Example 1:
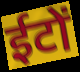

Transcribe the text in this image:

ईटों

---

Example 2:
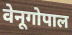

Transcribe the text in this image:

वेनूगोपाल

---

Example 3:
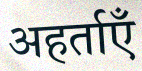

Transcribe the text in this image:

अहर्ताएँ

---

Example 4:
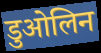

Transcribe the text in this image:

डुओलिन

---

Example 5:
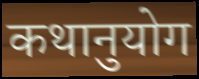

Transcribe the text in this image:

कथानुयोग